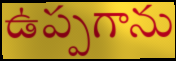
ఉప్పగాను